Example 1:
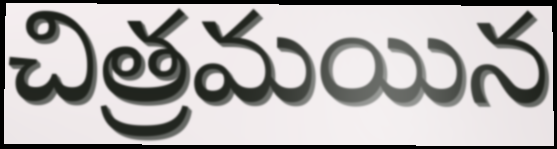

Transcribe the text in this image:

చిత్రమయిన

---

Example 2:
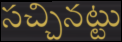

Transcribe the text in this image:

సచ్చినట్టు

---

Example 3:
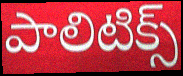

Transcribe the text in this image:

పాలిటిక్స్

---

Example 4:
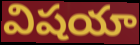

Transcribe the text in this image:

విషయా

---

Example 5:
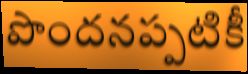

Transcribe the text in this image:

పొందనప్పటికీ